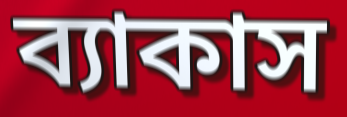
ব্যাকাস